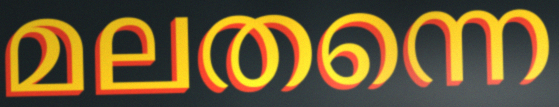
മലതന്നെ